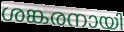
ശങ്കരനായി